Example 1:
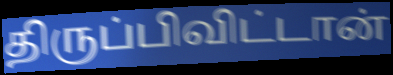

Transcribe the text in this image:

திருப்பிவிட்டான்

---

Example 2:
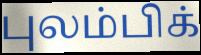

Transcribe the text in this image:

புலம்பிக்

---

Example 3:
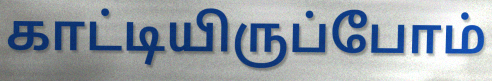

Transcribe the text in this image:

காட்டியிருப்போம்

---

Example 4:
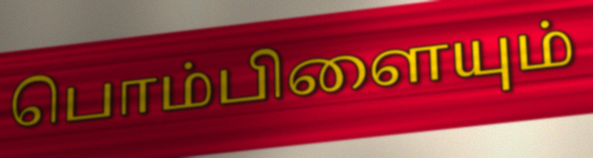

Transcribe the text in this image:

பொம்பிளையும்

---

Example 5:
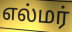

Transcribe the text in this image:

எல்மர்